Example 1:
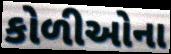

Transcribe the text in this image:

કોળીઓના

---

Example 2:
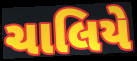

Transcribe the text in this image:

ચાલિયે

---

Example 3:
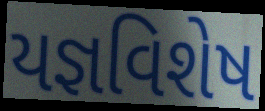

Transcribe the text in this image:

યજ્ઞવિશેષ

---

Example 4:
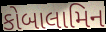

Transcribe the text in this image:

કોબાલામિન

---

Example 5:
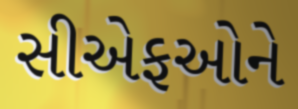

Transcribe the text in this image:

સીએફઓને